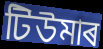
টিউমাৰ